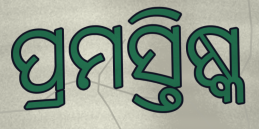
ପ୍ରମସ୍ତିଷ୍କ